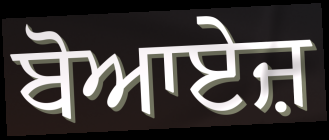
ਬੋਆਏਜ਼